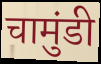
चामुंडी